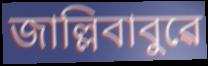
জাল্লিবাবুৱে